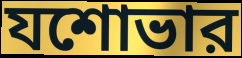
যশোভার